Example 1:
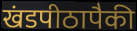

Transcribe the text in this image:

खंडपीठापैकी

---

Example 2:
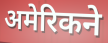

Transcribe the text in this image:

अमेरिकने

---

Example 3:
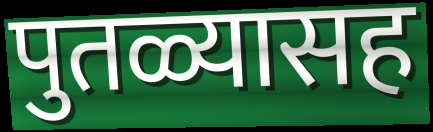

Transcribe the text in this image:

पुतळ्यासह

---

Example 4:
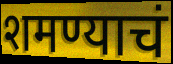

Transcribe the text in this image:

शमण्याचं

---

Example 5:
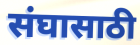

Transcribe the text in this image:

संघासाठी